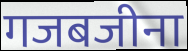
गजबजीना